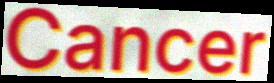
Cancer